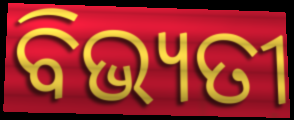
ବିଭ୍ୟତୀ